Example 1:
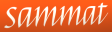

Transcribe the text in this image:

sammat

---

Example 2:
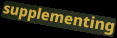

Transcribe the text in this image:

supplementing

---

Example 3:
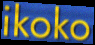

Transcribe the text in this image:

ikoko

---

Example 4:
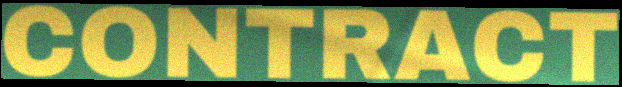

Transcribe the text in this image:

CONTRACT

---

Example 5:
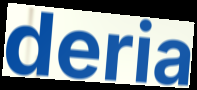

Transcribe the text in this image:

deria